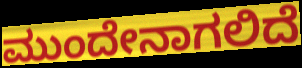
ಮುಂದೇನಾಗಲಿದೆ